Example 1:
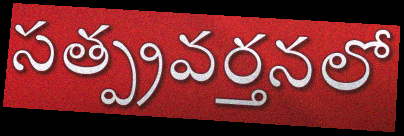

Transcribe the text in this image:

సత్ప్రవర్తనలో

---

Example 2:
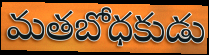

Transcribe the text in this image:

మతబోధకుడు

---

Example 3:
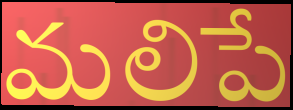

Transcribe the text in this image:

మలిపే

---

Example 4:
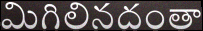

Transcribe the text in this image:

మిగిలినదంతా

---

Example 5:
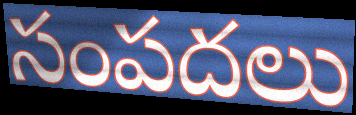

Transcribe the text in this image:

సంపదలు